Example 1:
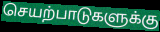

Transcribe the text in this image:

செயற்பாடுகளுக்கு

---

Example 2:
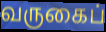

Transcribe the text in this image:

வருகைப்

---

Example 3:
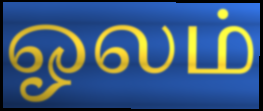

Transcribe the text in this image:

ஓலம்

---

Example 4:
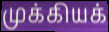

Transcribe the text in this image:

முக்கியக்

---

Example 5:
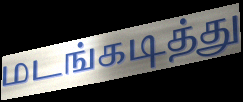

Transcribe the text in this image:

மடங்கடித்து